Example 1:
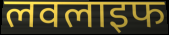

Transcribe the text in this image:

लवलाइफ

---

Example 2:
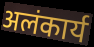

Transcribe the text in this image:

अलंकार्य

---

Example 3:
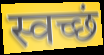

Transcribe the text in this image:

स्वच्छं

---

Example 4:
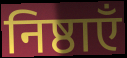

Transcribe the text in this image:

निष्ठाएँ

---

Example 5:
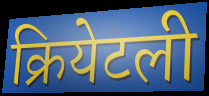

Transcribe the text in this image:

क्रियेटली